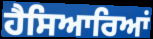
ਹੈਸਿਆਰਿਆਂ